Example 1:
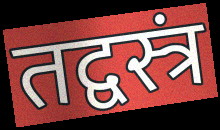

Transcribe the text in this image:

तद्वस्त्रं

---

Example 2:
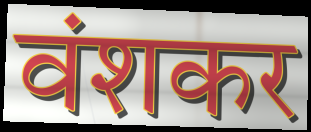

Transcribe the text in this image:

वंशकर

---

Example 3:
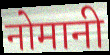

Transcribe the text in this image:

नोमानी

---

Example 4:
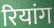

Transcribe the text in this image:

रियांग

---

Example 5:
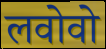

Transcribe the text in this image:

लवोवो